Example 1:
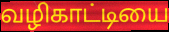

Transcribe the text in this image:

வழிகாட்டியை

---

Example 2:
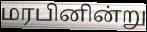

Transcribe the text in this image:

மரபினின்று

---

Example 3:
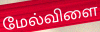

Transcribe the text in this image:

மேல்விளை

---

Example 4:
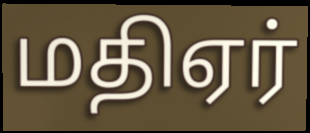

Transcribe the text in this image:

மதிஏர்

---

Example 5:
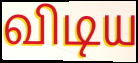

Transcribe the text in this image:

விடிய